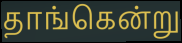
தாங்கென்று